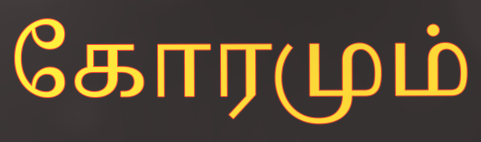
கோரமும்